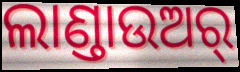
ଲାଣ୍ଡାଉଅର୍